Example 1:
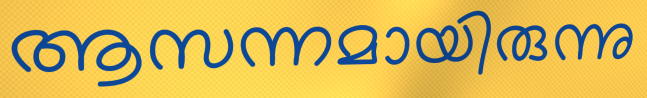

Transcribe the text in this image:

ആസന്നമായിരുന്നു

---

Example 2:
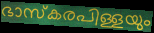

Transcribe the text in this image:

ഭാസ്കരപിള്ളയും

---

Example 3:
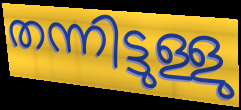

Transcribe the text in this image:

തന്നിട്ടുള്ളു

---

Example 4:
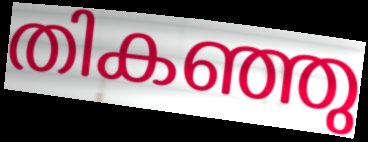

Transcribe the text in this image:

തികഞ്ഞു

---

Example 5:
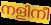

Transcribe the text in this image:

നളിനീ